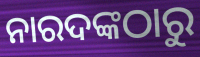
ନାରଦଙ୍କଠାରୁ